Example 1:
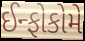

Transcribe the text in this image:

ઈન્ફોકોમે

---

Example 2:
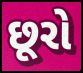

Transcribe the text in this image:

છૂરો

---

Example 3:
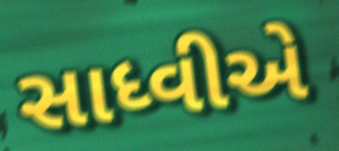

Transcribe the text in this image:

સાધ્વીએ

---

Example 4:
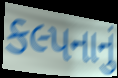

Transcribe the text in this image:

કલ્પનાનું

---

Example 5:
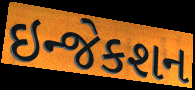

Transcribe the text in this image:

ઇન્જેકશન